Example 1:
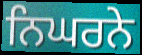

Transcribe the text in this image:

ਨਿਘਰਨੇ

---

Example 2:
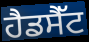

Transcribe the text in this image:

ਹੈਡਸੈੱਟ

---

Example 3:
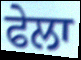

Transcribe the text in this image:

ਫੇਲਾ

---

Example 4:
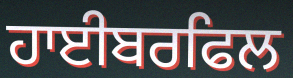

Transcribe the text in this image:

ਹਾਈਬਰਫਿਲ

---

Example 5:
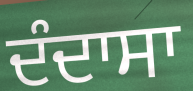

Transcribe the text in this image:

ਦੰਦਾਸਾ